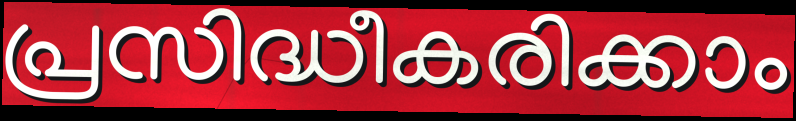
പ്രസിദ്ധീകരിക്കാം